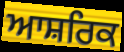
ਆਸ਼ਰਿਕ